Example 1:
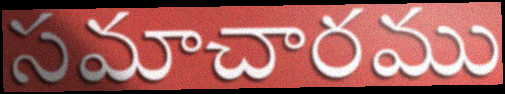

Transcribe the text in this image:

సమాచారము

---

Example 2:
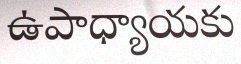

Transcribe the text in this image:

ఉపాధ్యాయకు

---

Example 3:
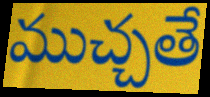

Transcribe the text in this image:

ముచ్చతే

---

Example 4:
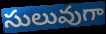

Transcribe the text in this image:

సులువుగా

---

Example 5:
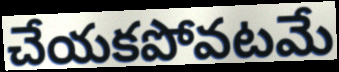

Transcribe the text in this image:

చేయకపోవటమే